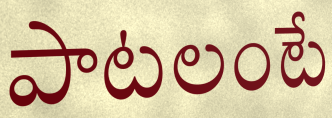
పాటలంటే